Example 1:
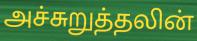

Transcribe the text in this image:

அச்சுறுத்தலின்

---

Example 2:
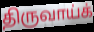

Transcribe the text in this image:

திருவாய்க்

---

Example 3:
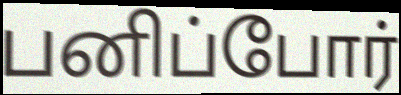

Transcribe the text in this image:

பனிப்போர்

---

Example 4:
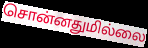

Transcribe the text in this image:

சொன்னதுமில்லை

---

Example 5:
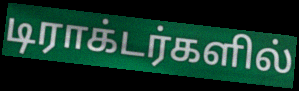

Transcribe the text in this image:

டிராக்டர்களில்